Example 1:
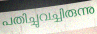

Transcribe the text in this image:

പതിച്ചുവച്ചിരുന്നു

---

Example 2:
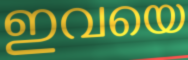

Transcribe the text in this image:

ഇവയെ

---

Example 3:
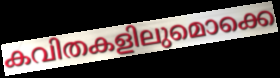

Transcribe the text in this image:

കവിതകളിലുമൊക്കെ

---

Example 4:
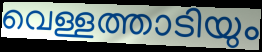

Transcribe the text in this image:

വെള്ളത്താടിയും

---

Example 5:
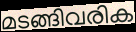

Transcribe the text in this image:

മടങ്ങിവരിക